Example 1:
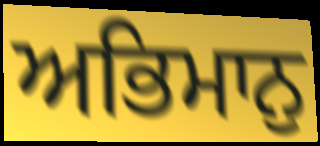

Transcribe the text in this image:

ਅਭਿਮਾਨੁ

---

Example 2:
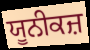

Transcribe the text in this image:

ਯੂਨੀਕਜ਼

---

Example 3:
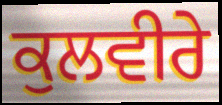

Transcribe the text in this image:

ਕੁਲਵੀਰੇ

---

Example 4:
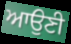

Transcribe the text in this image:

ਆਉਣੀ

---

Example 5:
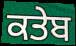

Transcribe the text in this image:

ਕਤੇਬ